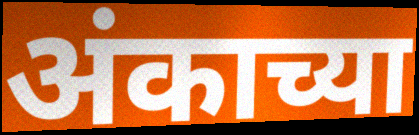
अंकाच्या